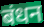
बंधन